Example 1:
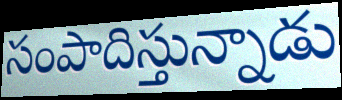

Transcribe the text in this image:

సంపాదిస్తున్నాడు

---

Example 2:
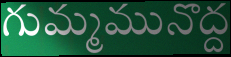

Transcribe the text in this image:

గుమ్మమునొద్ద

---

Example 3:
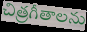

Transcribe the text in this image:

చిత్రగీతాలను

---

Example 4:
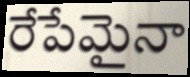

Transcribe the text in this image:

రేపేమైనా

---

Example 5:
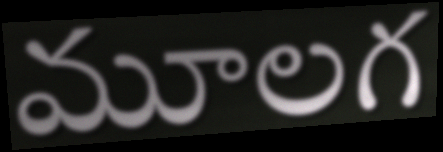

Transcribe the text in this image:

మూలగ